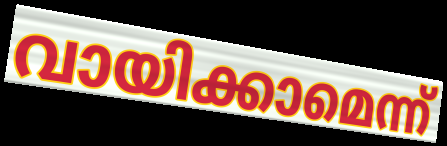
വായിക്കാമെന്ന്